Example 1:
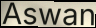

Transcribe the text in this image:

Aswan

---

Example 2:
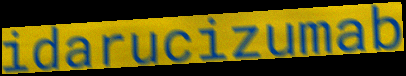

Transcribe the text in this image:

idarucizumab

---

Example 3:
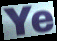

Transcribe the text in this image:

Ye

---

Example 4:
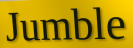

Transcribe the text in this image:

Jumble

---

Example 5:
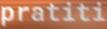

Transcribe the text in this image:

pratiti